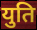
युति